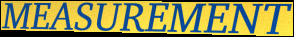
MEASUREMENT